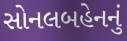
સોનલબહેનનું